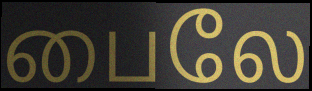
பைலே